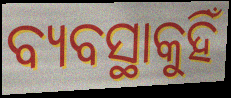
ବ୍ୟବସ୍ଥାକୁହିଁ